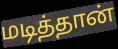
மடித்தான்